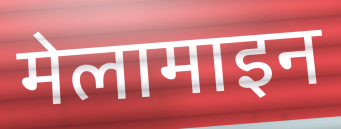
मेलामाइन